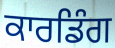
ਕਾਰਡਿੰਗ